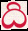
ది